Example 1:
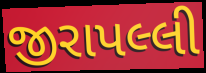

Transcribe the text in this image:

જીરાપલ્લી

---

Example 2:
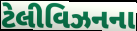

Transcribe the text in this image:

ટેલીવિઝનના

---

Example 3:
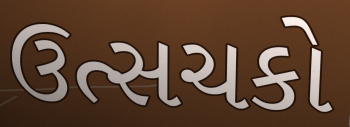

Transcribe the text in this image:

ઉત્સચકો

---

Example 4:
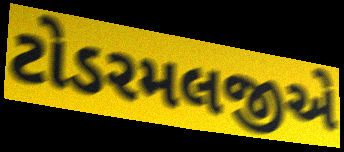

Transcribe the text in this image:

ટોડરમલજીએ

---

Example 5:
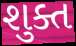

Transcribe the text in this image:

શુક્ત